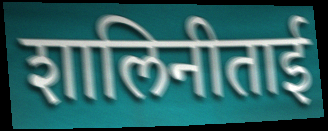
शालिनीताई